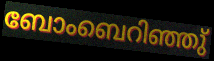
ബോംബെറിഞ്ഞു്